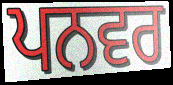
ਪਨਵਰ